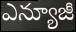
ఎన్యూజీ